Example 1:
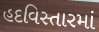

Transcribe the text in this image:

હદવિસ્તારમાં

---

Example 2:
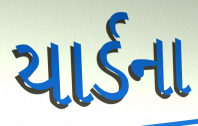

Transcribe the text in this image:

યાર્ડના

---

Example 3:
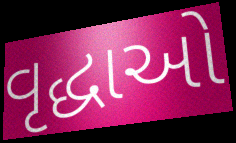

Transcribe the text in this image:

વૃદ્ધાઓ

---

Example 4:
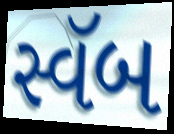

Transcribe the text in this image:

સ્વૅબ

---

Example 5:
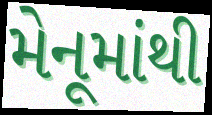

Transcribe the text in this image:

મેનૂમાંથી